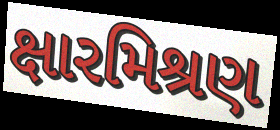
ક્ષારમિશ્રણ